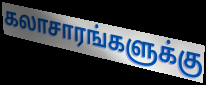
கலாசாரங்களுக்கு